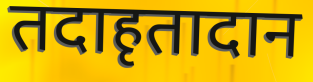
तदाहृतादान